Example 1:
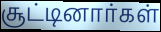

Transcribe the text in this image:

சூட்டினார்கள்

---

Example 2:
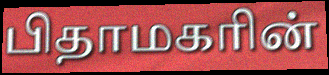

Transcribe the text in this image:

பிதாமகரின்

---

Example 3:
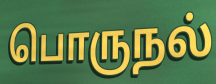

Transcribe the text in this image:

பொருநல்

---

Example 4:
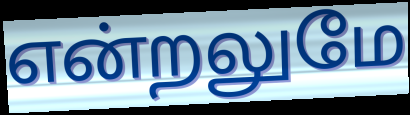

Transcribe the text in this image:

என்றலுமே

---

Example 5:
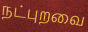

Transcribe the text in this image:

நட்புறவை